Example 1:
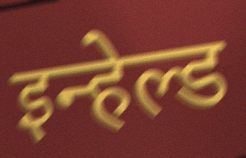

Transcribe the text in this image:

इन्हेल्ड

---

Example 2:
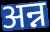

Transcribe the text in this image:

अन्न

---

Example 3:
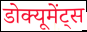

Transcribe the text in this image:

डोक्यूमेंट्स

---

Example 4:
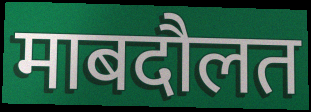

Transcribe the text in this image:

माबदौलत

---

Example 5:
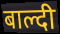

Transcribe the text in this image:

बाल्दी